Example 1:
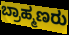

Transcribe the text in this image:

ಬ್ರಾಹ್ಮಣರು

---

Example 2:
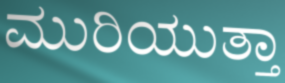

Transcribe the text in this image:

ಮುರಿಯುತ್ತಾ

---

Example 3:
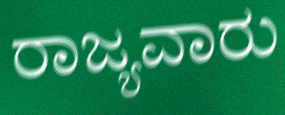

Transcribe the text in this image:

ರಾಜ್ಯವಾರು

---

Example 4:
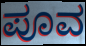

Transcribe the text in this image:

ಪೂವ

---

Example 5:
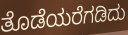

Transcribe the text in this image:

ತೊಡೆಯರೆಗಡಿದು